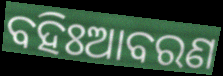
ବହିଃଆବରଣ